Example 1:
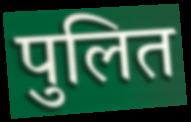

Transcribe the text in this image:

पुलित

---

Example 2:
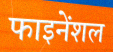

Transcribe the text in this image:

फाइनेंशल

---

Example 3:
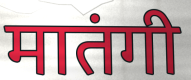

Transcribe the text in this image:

मातंगी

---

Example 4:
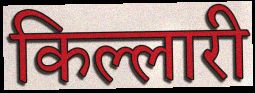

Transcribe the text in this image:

किल्लारी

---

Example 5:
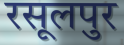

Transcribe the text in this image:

रसूलपुर